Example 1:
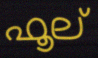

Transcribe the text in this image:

ഫൂല്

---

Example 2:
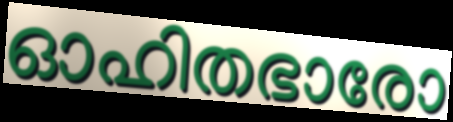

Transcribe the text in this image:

ഓഹിതഭാരോ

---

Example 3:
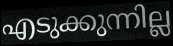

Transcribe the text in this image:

എടുക്കുന്നില്ല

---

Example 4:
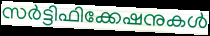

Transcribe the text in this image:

സർട്ടിഫിക്കേഷനുകൾ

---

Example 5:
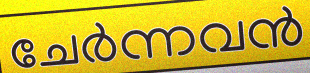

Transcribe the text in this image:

ചേർന്നവൻ